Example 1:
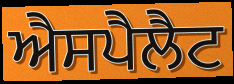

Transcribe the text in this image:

ਐਸਪੈਲੈਟ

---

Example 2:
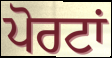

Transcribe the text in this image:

ਪੋਰਟਾਂ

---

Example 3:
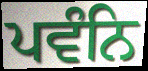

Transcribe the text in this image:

ਪਵੰਨਿ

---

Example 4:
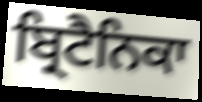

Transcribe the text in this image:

ਬ੍ਰਿਟੈਨਿਕਾ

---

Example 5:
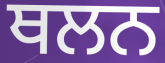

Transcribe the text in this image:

ਥਲਨ